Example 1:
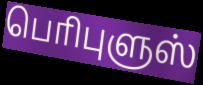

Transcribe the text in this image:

பெரிபுளுஸ்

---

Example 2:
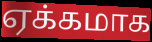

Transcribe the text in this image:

ஏக்கமாக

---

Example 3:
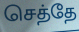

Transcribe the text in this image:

செத்தே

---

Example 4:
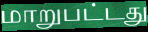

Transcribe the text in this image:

மாறுபட்டது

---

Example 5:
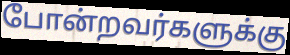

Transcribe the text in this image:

போன்றவர்களுக்கு